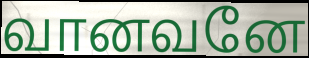
வானவனே